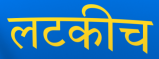
लटकीच